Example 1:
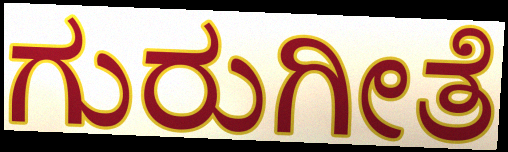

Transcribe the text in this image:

ಗುರುಗೀತೆ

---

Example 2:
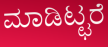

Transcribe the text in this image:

ಮಾಡಿಟ್ಟರೆ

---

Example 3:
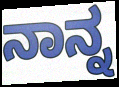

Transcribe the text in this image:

ನಾನ್ನ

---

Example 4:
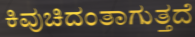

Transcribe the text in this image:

ಕಿವುಚಿದಂತಾಗುತ್ತದೆ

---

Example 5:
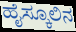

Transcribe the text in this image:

ಹೈಸ್ಕೂಲಿನ